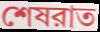
শেষরাত